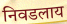
निवडलाय